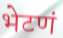
भेटणं